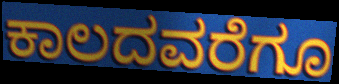
ಕಾಲದವರೆಗೂ